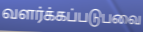
வளர்க்கப்படுபவை